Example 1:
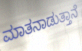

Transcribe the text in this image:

ಮಾತನಾಡುತ್ತಾನೆ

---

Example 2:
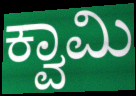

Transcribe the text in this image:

ಕ್ವಾಮಿ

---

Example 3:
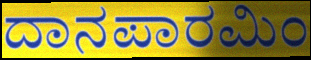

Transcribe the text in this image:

ದಾನಪಾರಮಿಂ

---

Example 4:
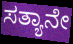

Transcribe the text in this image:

ಸತ್ಯಾನೇ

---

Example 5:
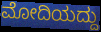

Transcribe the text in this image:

ಮೋದಿಯದ್ದು